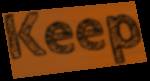
Keep